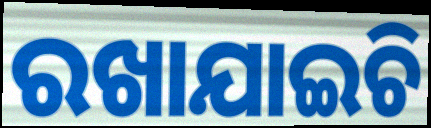
ରଖାଯାଇଚି